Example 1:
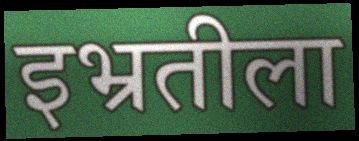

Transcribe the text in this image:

इभ्रतीला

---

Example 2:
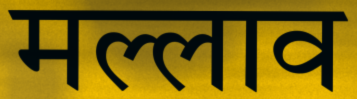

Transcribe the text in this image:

मल्लाव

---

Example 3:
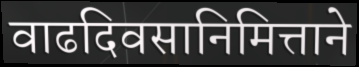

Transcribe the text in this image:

वाढदिवसानिमित्ताने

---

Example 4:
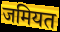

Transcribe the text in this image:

जमियत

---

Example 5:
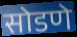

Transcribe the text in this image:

सोडणे